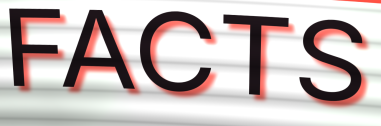
FACTS